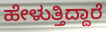
ಹೇಳುತ್ತಿದ್ದಾರೆ